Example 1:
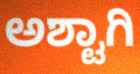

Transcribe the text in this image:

ಅಶ್ಟಾಗಿ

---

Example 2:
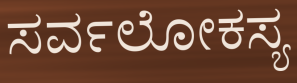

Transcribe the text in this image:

ಸರ್ವಲೋಕಸ್ಯ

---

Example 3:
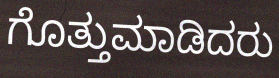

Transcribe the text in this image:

ಗೊತ್ತುಮಾಡಿದರು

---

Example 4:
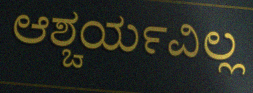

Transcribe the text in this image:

ಆಶ್ಚರ್ಯವಿಲ್ಲ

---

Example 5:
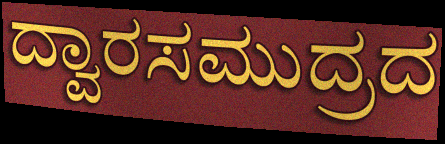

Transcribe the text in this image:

ದ್ವಾರಸಮುದ್ರದ